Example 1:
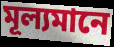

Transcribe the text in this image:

মূল্যমানে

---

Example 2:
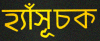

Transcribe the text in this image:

হ্যাঁসূচক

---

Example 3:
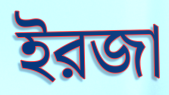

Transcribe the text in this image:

ইরজা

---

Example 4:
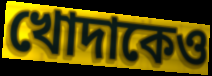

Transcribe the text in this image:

খোদাকেও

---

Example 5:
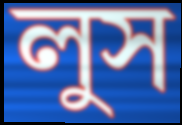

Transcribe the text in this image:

লুস